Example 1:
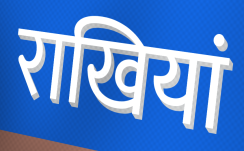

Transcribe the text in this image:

राखियां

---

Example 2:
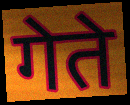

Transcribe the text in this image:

गेते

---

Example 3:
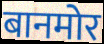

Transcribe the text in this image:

बानमोर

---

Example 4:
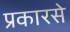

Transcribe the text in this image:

प्रकारसे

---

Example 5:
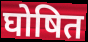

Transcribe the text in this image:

घोषित